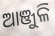
ଆଞ୍ଜୁଳି